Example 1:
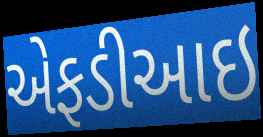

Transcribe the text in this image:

એફડીઆઇ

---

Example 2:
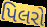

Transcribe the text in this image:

પિલરો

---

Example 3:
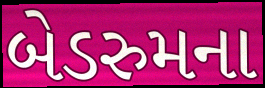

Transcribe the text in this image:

બેડરુમના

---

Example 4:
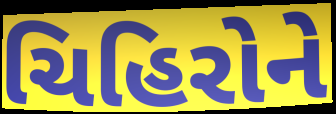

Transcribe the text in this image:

ચિહિરોને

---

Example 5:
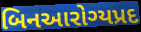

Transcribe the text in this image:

બિનઆરોગ્યપ્રદ